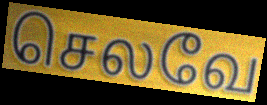
செலவே